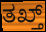
ತಖ್ತ್